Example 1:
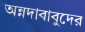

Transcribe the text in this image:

অন্নদাবাবুদের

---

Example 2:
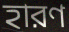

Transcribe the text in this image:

হারণ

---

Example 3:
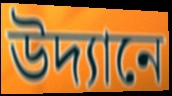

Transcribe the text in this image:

উদ্যানে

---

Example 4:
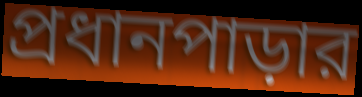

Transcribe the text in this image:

প্রধানপাড়ার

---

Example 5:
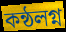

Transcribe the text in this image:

কন্ঠলগ্ন